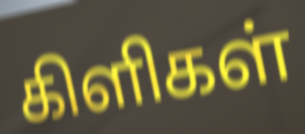
கிளிகள்